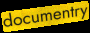
documentry